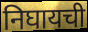
निघायची